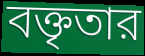
বক্তৃতার